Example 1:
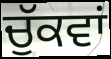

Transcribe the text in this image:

ਚੁੱਕਵਾਂ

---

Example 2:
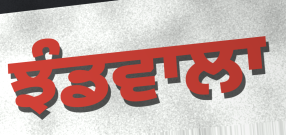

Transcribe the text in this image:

ਝੰਡਵਾਲਾ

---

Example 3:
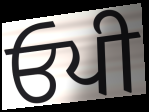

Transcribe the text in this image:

ਓਪੀ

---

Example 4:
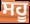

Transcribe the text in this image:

ਸਹੂ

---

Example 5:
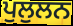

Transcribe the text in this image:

ਪੁਲੁਲਨ